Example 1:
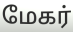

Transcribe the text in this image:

மேகர்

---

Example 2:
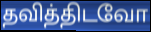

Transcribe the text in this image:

தவித்திடவோ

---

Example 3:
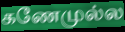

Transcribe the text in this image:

கணேமுல்ல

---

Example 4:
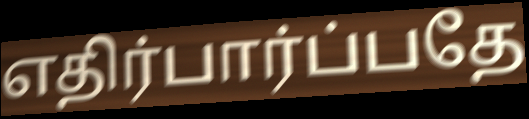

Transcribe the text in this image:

எதிர்பார்ப்பதே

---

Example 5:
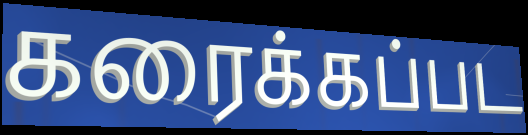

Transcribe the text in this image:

கரைக்கப்பட